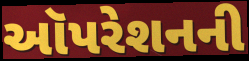
ઑપરેશનની